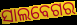
ସାଲବେଗର